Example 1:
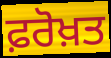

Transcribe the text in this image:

ਫ਼ਰੋਖ਼ਤ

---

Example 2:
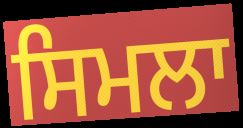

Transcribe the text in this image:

ਸਿਮਲਾ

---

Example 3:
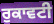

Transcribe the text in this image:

ਰੁਕਾਵਟੀ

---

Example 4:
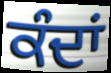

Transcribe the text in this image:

ਕੰਦਾਂ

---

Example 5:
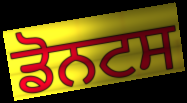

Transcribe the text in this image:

ਡੋਨਟਸ